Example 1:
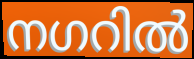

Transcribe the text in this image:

നഗറിൽ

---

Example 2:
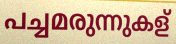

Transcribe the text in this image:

പച്ചമരുന്നുകള്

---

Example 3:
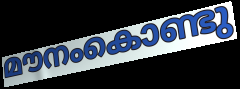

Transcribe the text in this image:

മൗനംകൊണ്ടു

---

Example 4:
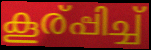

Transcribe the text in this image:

കൂര്പ്പിച്ച്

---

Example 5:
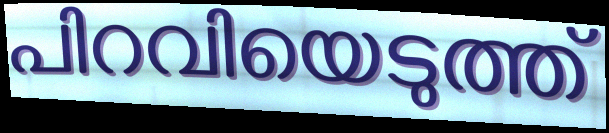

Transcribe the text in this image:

പിറവിയെടുത്ത്